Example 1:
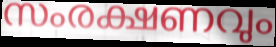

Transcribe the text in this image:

സംരക്ഷണവും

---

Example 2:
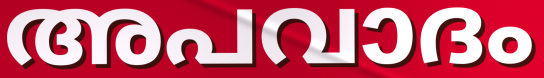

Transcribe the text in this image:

അപവാദം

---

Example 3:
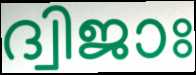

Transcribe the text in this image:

ദ്വിജാഃ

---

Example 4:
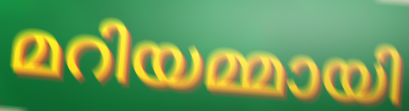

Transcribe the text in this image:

മറിയമ്മായി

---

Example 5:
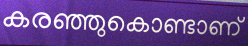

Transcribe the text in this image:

കരഞ്ഞുകൊണ്ടാണ്